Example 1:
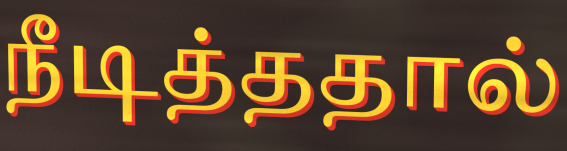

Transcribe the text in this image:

நீடித்ததால்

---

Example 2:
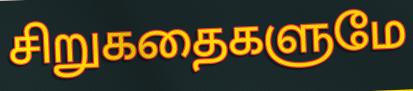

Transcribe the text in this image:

சிறுகதைகளுமே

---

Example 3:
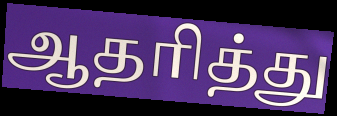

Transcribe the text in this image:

ஆதரித்து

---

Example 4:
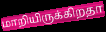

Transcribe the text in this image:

மாறியிருக்கிறதா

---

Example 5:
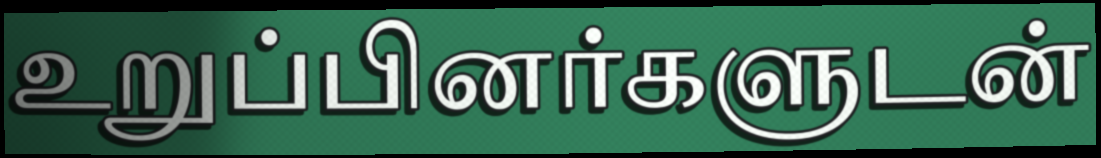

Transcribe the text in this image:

உறுப்பினர்களுடன்